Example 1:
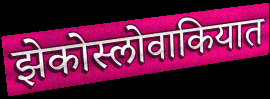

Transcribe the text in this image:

झेकोस्लोवाकियात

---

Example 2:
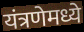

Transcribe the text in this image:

यंत्रणेमध्ये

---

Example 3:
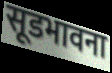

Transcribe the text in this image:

सूडभावना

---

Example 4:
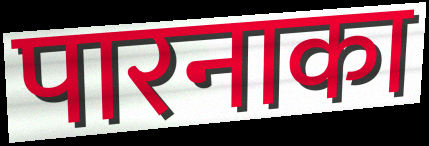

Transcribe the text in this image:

पारनाका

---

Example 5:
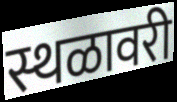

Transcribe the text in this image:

स्थळावरी